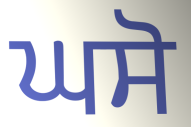
ਘਸੋ